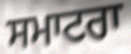
ਸਮਾਟਰਾ